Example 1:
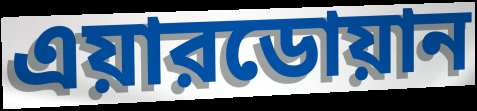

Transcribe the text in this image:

এয়ারডোয়ান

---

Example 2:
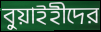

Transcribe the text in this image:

বুয়াইহীদের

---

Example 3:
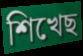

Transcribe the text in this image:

শিখেছ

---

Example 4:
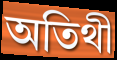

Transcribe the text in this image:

অতিথী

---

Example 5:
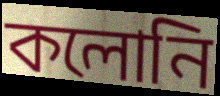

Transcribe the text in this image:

কলোনি